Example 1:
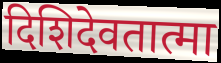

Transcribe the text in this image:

दिशिदेवतात्मा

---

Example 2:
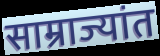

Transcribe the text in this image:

साम्राज्यांत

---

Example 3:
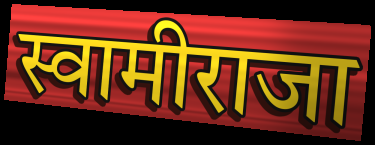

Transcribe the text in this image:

स्वामीराजा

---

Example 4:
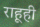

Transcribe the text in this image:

राहूही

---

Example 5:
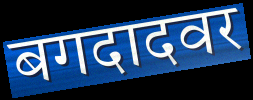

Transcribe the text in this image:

बगदादवर